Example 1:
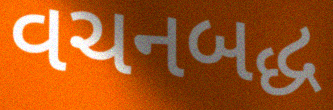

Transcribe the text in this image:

વચનબદ્ધ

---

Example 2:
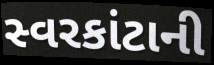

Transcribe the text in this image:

સ્વરકાંટાની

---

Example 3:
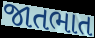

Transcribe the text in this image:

જાતભાત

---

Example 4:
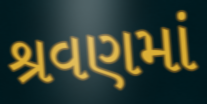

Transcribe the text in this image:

શ્રવણમાં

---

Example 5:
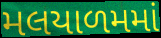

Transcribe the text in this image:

મલયાળમમાં